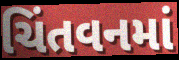
ચિંતવનમાં